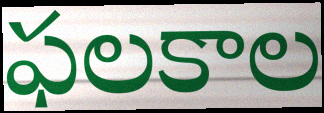
ఫలకాల